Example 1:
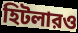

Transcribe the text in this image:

হিটলারও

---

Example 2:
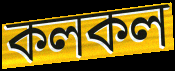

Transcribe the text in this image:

কলকল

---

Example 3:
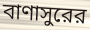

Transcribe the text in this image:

বাণাসুরের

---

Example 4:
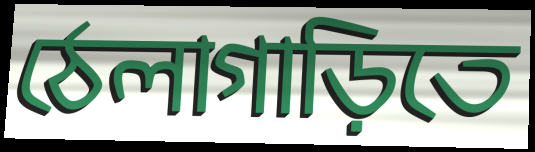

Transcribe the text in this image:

ঠেলাগাড়িতে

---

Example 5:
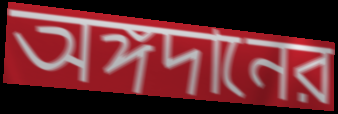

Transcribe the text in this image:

অঙ্গদানের